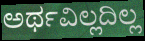
ಅರ್ಥವಿಲ್ಲದಿಲ್ಲ